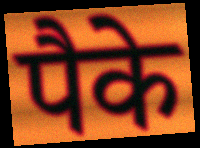
पैके